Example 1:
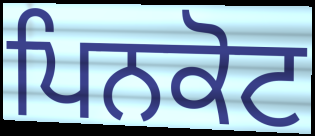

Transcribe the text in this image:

ਪਿਨਕੋਟ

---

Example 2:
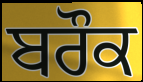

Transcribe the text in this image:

ਬਰੌਕ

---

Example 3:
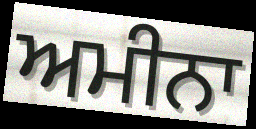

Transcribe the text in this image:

ਅਮੀਨਾ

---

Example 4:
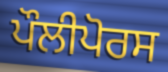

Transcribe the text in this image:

ਪੌਲੀਪੋਰਸ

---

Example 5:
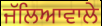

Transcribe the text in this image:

ਜੱਲਿਆਵਾਲੇ